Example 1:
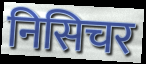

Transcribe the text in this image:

निसिचर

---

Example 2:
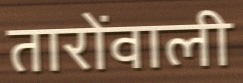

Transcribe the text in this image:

तारोंवाली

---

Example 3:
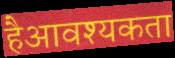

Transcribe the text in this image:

हैआवश्यकता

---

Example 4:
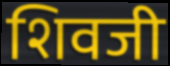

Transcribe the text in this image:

शिवजी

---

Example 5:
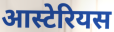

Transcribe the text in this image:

आस्टेरियस